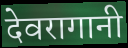
देवरागानी